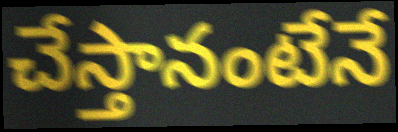
చేస్తానంటేనే